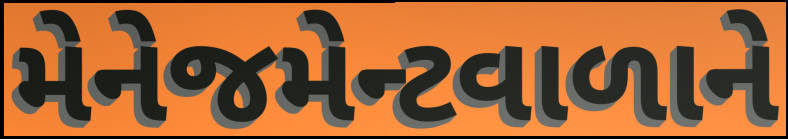
મેનેજમેન્ટવાળાને